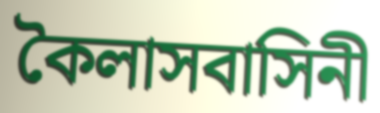
কৈলাসবাসিনী